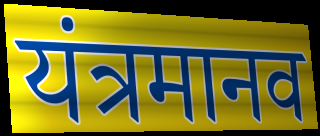
यंत्रमानव